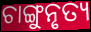
ଚାଙ୍ଗୁନୃତ୍ୟ